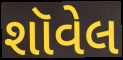
શૉવેલ